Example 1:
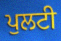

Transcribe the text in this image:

ਪੁਲਟੀ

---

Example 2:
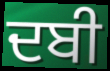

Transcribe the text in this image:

ਦਬੀ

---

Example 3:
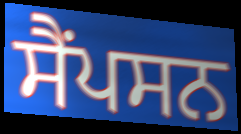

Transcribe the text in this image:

ਸੈਂਪਸਨ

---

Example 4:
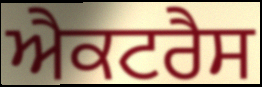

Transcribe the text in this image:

ਐਕਟਰੈਸ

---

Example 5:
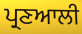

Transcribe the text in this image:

ਪ੍ਰਣਆਲੀ